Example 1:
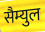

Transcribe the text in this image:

सैम्युल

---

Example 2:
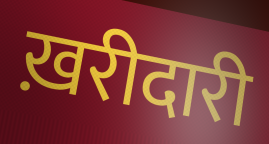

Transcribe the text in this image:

ख़रीदारी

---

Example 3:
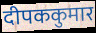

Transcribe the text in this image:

दीपककुमार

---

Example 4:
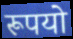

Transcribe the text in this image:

रूपयो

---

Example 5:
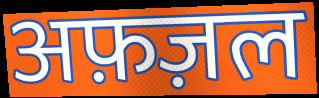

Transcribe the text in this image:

अफ़ज़ल